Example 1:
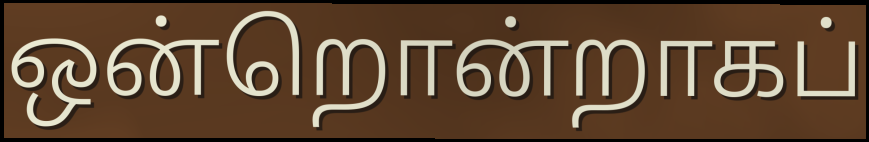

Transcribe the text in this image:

ஒன்றொன்றாகப்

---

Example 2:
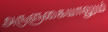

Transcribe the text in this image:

அருளுகையாலும்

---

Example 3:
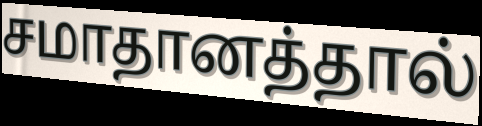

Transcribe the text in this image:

சமாதானத்தால்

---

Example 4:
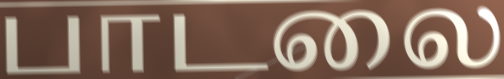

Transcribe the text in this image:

பாடலை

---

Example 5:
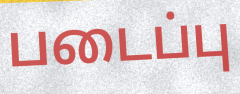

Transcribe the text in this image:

படைப்பு